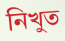
নিখুত